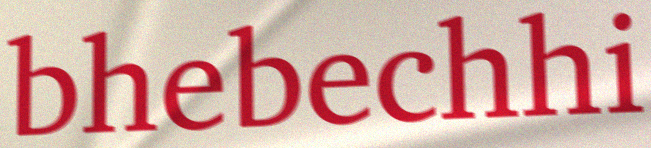
bhebechhi